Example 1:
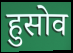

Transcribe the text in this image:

हुसोव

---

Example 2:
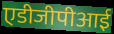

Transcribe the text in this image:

एडीजीपीआई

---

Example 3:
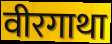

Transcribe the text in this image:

वीरगाथा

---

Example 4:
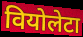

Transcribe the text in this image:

वियोलेटा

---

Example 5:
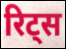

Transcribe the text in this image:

रिट्स